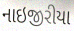
નાઇજીરીયા